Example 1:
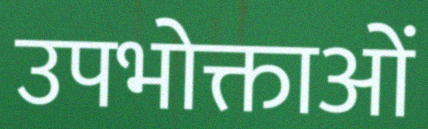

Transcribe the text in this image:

उपभोक्ताओं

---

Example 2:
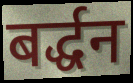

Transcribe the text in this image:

बर्द्धन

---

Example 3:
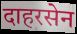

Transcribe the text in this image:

दाहरसेन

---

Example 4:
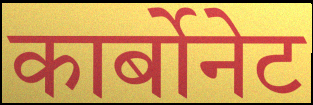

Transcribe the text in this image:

कार्बोनेट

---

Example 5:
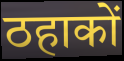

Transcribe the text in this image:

ठहाकों